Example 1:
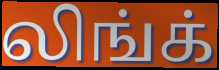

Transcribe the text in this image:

லிங்க்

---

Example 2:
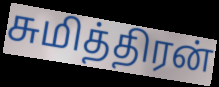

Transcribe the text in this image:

சுமித்திரன்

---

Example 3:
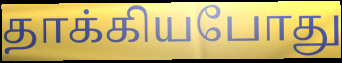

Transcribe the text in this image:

தாக்கியபோது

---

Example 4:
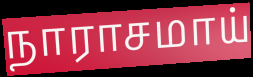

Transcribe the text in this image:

நாராசமாய்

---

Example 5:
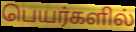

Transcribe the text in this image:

பெயர்களில்